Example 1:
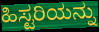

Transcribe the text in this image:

ಹಿಸ್ಟರಿಯನ್ನು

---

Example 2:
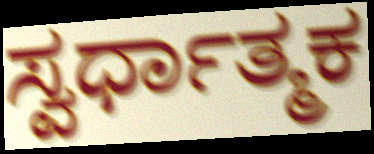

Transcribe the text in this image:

ಸ್ವರ್ಧಾತ್ಮಕ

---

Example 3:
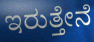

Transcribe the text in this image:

ಇರುತ್ತೇನೆ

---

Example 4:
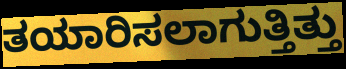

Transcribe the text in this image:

ತಯಾರಿಸಲಾಗುತ್ತಿತ್ತು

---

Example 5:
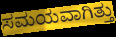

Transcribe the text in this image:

ಸಮಯವಾಗಿತ್ತು